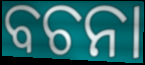
ବଚନା